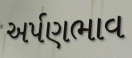
અર્પણભાવ